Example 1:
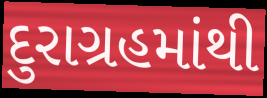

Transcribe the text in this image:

દુરાગ્રહમાંથી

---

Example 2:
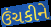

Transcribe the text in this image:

ઉંચકીને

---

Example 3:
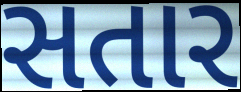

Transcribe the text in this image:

સતાર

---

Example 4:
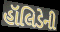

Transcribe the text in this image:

હૉલિડેની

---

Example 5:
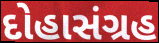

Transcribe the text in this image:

દોહાસંગ્રહ